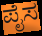
ಪೈಸ